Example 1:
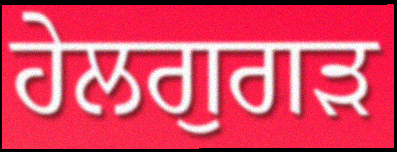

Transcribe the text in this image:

ਹੇਲਗੁਗੜ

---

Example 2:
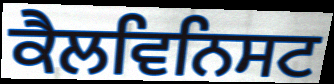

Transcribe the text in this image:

ਕੈਲਵਿਨਿਸਟ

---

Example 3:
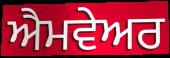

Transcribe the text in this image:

ਐਮਵੇਅਰ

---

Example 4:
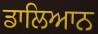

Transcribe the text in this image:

ਡਾਲਿਆਨ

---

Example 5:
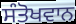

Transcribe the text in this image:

ਸੰਤੋਖਵਾਨ